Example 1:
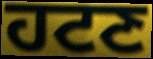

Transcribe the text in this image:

ਹਟਣ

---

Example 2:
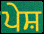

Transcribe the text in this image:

ਪੇਸ਼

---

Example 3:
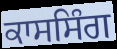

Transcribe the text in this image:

ਕਾਸਸਿੰਗ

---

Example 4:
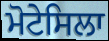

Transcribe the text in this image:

ਮੋਟੇਸਿਲਾ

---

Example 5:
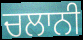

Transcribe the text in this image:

ਚਲਾਨੀ